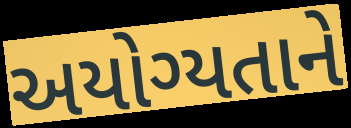
અયોગ્યતાને